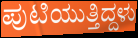
ಪುಟಿಯುತ್ತಿದ್ದಳು